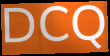
DCQ